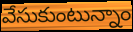
వేసుకుంటున్నాం